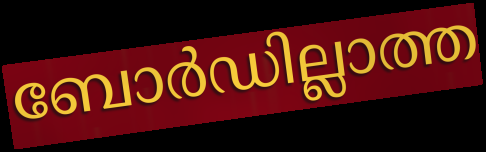
ബോർഡില്ലാത്ത